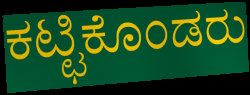
ಕಟ್ಟಿಕೊಂಡರು